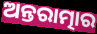
ଅନ୍ତରାତ୍ମାର